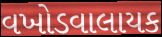
વખોડવાલાયક